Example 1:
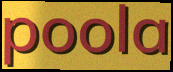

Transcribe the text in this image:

poola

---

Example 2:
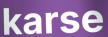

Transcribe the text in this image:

karse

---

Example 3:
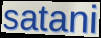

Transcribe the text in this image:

satani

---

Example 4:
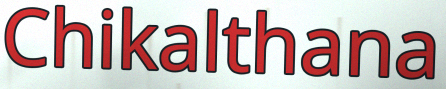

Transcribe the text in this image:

Chikalthana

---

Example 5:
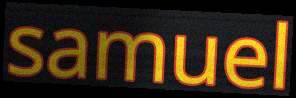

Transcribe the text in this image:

samuel